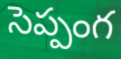
సెప్పంగ